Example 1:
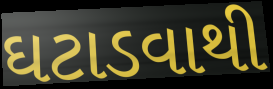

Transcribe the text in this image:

ઘટાડવાથી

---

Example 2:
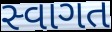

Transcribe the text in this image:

સ્વાગત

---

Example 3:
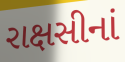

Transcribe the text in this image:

રાક્ષસીનાં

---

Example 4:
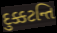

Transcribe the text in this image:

દુક્કટન્તિ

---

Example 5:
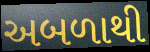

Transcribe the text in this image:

અબળાથી